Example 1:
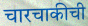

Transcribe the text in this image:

चारचाकीची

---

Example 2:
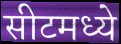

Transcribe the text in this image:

सीटमध्ये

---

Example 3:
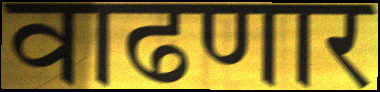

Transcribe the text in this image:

वाढणार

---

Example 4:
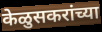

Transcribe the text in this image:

केळुसकरांच्या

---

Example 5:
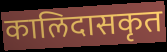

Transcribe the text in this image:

कालिदासकृत